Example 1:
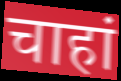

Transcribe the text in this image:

चाहां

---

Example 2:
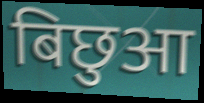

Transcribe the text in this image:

बिछुआ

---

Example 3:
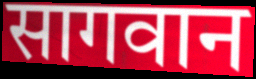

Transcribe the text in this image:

सागवान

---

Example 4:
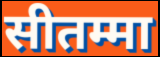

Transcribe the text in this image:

सीतम्मा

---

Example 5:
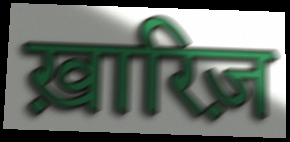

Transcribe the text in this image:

ख़ारिज़